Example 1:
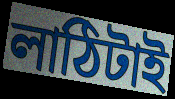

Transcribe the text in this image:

লাঠিটাই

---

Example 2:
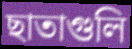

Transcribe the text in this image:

ছাতাগুলি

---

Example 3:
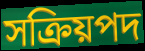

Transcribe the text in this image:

সক্রিয়পদ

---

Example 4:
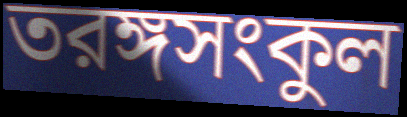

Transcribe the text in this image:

তরঙ্গসংকুল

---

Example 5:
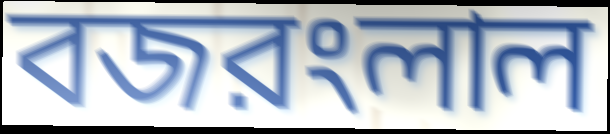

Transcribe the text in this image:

বজরংলাল